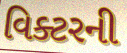
વિક્ટરની